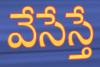
వేసేస్తే